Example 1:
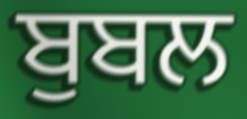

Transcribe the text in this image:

ਬੁਬਲ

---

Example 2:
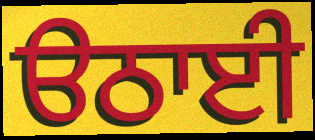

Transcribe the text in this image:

ੳਠਾਈ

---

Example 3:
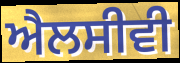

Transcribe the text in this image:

ਐਲਸੀਵੀ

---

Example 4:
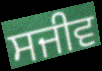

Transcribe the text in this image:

ਸਜੀਵ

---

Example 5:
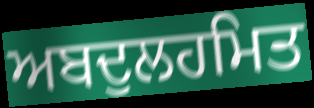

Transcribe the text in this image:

ਅਬਦੁਲਹਮਿਤ